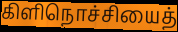
கிளிநொச்சியைத்